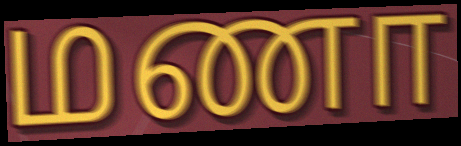
மணா